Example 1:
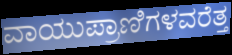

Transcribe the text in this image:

ವಾಯುಪ್ರಾಣಿಗಳವರೆತ್ತ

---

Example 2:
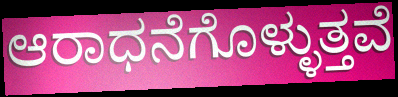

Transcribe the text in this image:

ಆರಾಧನೆಗೊಳ್ಳುತ್ತವೆ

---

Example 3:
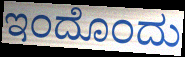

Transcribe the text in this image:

ಇಂದೊಂದು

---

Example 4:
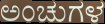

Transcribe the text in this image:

ಅಂಚುಗಳ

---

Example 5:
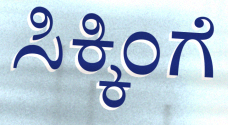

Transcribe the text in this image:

ಸಿಕ್ಕಿಂಗೆ